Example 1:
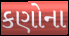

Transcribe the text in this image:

કણોના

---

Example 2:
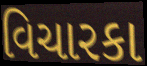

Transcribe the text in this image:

વિચારકા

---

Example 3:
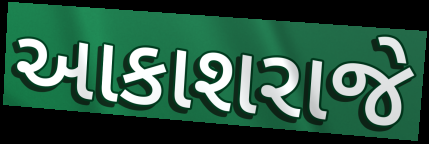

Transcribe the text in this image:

આકાશરાજે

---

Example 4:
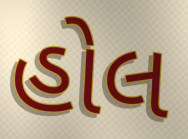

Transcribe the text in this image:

હોલ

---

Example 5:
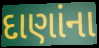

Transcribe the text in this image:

દાણાંના